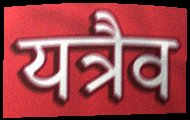
यत्रैव